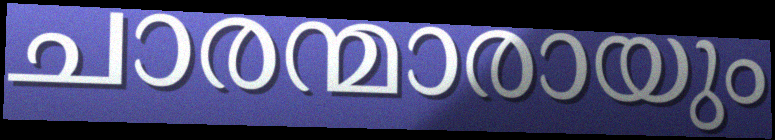
ചാരന്മാരായും